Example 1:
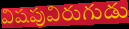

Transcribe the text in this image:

విషపువిరుగుడు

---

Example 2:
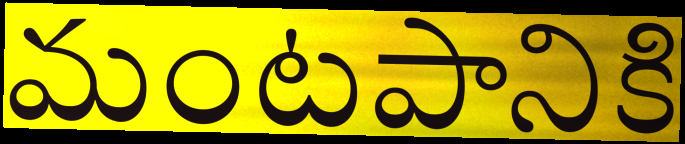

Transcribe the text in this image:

మంటపానికి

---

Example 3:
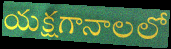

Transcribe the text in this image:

యక్షగానాలలో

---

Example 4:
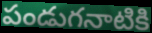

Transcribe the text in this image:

పండుగనాటికి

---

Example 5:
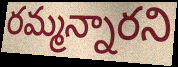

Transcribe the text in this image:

రమ్మన్నారని